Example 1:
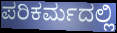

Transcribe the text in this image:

ಪರಿಕರ್ಮದಲ್ಲಿ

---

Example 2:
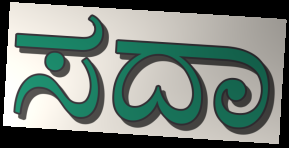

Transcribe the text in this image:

ಸದಾ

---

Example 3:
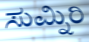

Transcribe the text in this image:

ಸುಮ್ನಿರಿ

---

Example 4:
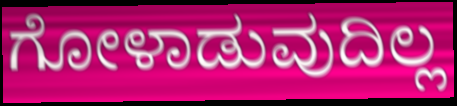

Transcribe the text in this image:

ಗೋಳಾಡುವುದಿಲ್ಲ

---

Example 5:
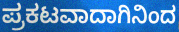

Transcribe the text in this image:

ಪ್ರಕಟವಾದಾಗಿನಿಂದ